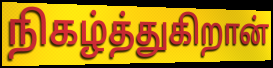
நிகழ்த்துகிறான்